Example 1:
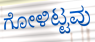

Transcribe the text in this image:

ಗೋಳಿಟ್ಟವು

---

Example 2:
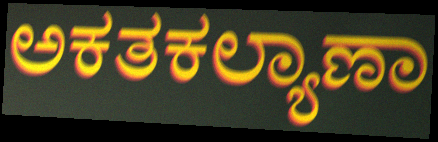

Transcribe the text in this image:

ಅಕತಕಲ್ಯಾಣಾ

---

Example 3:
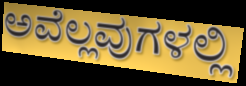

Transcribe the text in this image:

ಅವೆಲ್ಲವುಗಳಲ್ಲಿ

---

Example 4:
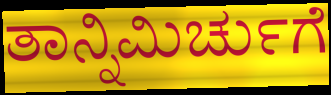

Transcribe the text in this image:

ತಾನ್ನಿಮಿರ್ಚುಗೆ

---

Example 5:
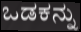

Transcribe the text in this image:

ಒಡಕನ್ನು